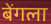
बेंगला